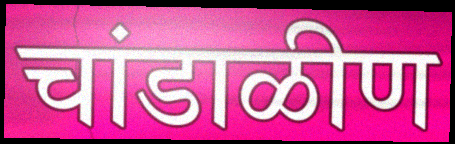
चांडाळीण